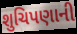
શુચિપણાની